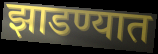
झाडण्यात